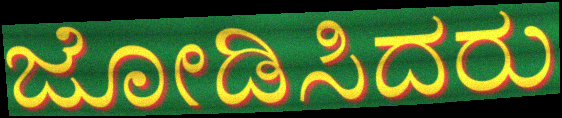
ಜೋಡಿಸಿದರು